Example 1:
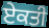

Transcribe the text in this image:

ਏਕਤੀ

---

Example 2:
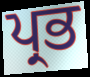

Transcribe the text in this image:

ਪ੍ਰਭ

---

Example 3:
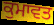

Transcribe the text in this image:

ਕੁਮਾਵਤ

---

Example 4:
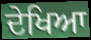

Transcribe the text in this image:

ਦੇਖਿਆ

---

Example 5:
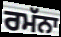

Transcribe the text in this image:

ਰਮੱਨਾ